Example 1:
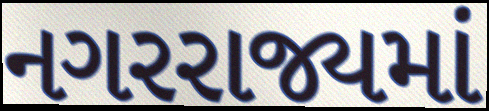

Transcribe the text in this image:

નગરરાજ્યમાં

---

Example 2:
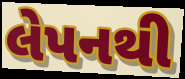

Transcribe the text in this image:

લેપનથી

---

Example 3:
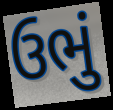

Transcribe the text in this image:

ઉભું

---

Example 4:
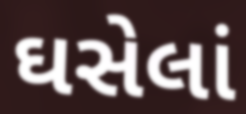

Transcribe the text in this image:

ઘસેલાં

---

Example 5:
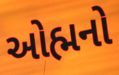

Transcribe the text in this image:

ઓહ્મનો